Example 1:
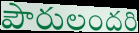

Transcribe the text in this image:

పౌరులందరి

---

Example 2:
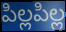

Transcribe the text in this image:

పిల్లపిల్ల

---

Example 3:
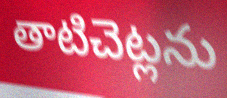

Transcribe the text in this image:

తాటిచెట్లను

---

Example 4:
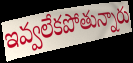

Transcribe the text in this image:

ఇవ్వలేకపోతున్నారు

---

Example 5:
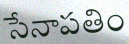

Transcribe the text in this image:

సేనాపతిం